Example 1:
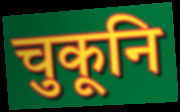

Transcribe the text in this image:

चुकूनि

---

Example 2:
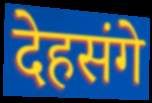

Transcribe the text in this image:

देहसंगे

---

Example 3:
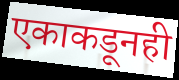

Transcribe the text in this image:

एकाकडूनही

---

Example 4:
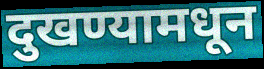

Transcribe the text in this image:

दुखण्यामधून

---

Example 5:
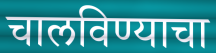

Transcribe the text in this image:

चालविण्याचा